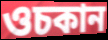
ওচকান